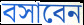
বসাবেন